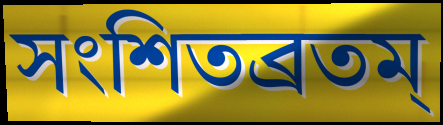
সংশিতব্রতম্